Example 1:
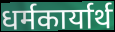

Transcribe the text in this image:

धर्मकार्यार्थ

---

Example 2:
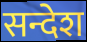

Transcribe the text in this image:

सन्देश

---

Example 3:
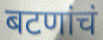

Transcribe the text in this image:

बटणांचं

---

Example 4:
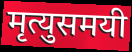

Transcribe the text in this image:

मृत्युसमयी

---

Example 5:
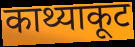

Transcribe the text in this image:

काथ्याकूट